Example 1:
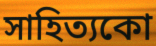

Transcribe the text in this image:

সাহিত্যকো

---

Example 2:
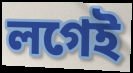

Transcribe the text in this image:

লগেই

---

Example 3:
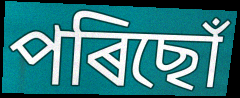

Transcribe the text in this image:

পৰিছোঁ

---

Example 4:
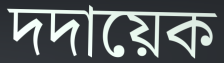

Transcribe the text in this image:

দদায়েক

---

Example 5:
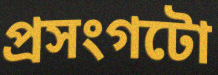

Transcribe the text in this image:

প্ৰসংগটো